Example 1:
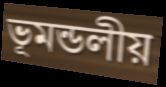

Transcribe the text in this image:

ভূমন্ডলীয়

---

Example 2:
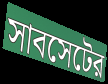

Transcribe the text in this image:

সাবসেটের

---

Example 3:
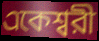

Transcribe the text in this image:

একেশ্বরী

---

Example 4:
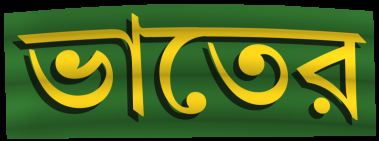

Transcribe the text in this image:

ভাতের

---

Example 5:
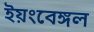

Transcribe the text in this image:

ইয়ংবেঙ্গল